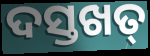
ଦସ୍ତଖତ୍